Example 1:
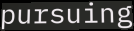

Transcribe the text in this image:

pursuing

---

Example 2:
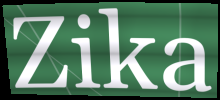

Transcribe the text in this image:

Zika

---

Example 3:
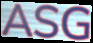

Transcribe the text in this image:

ASG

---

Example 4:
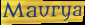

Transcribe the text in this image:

Maurya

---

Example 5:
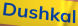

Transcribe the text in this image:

Dushkal